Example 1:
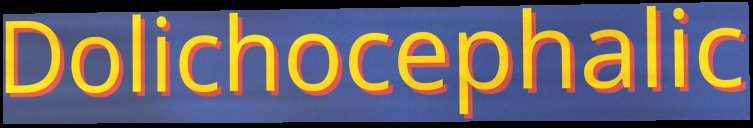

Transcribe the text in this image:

Dolichocephalic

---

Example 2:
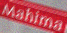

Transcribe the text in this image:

Mahima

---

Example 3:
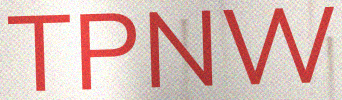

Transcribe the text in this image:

TPNW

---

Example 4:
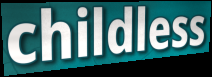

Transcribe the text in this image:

childless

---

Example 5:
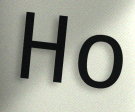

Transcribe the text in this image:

Ho